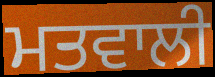
ਮਤਵਾਲੀ